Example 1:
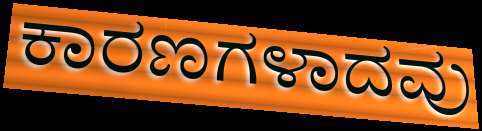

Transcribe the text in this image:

ಕಾರಣಗಳಾದವು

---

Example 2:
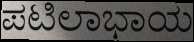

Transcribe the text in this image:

ಪಟಿಲಾಭಾಯ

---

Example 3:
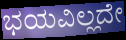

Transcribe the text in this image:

ಭಯವಿಲ್ಲದೇ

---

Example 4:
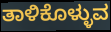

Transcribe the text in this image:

ತಾಳಿಕೊಳ್ಳುವ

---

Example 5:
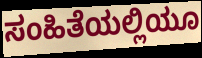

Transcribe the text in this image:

ಸಂಹಿತೆಯಲ್ಲಿಯೂ